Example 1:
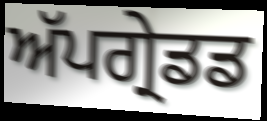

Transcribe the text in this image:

ਅੱਪਗ੍ਰੇਡਡ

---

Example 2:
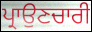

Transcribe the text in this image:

ਪ੍ਰਾਉਣਚਾਰੀ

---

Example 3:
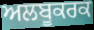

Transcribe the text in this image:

ਅਲਬੂਕਰਕ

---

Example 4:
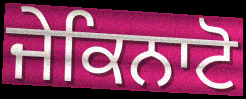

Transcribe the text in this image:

ਜੇਕਿਨਾਟੋ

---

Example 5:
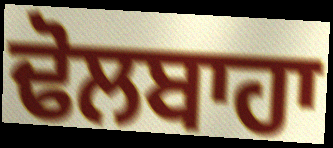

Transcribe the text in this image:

ਢੋਲਬਾਹਾ